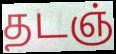
தடஞ்